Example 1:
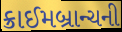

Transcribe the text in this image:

ક્રાઈમબ્રાન્ચની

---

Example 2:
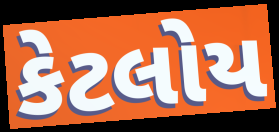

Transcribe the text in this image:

કેટલોય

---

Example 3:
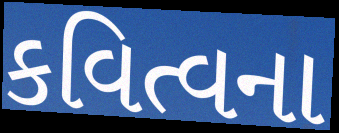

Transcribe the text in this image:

કવિત્વના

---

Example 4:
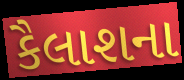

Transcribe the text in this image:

કૈલાશના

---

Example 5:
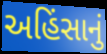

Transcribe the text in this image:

અહિંસાનું